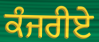
ਕੰਜਰੀਏ